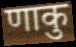
णाकु